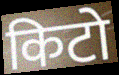
किटो